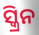
ସ୍କ୍ରିନ